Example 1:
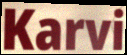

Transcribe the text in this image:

Karvi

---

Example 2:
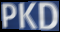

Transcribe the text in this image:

PKD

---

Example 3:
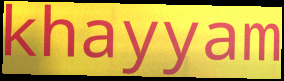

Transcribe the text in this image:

khayyam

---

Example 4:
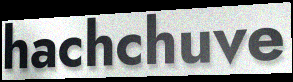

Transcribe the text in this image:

hachchuve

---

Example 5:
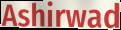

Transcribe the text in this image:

Ashirwad